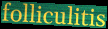
folliculitis